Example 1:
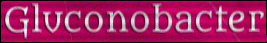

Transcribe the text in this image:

Gluconobacter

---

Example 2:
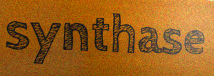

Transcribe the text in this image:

synthase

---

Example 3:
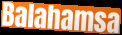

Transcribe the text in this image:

Balahamsa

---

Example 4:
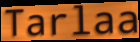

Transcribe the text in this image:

Tarlaa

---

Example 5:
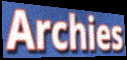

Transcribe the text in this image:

Archies